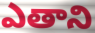
ఎతాని